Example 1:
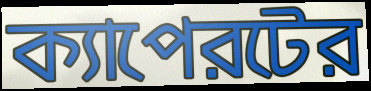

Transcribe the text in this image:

ক্যাপেরটের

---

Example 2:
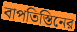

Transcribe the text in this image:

বাপতিস্তিনের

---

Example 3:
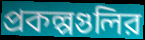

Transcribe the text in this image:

প্রকল্পগুলির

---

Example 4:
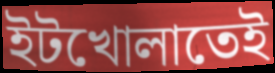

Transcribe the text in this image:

ইটখোলাতেই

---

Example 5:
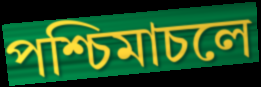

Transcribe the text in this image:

পশ্চিমাচলে